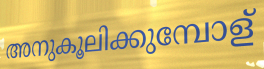
അനുകൂലിക്കുമ്പോള്